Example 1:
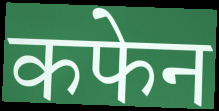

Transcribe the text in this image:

कफेन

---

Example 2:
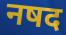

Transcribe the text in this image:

नषद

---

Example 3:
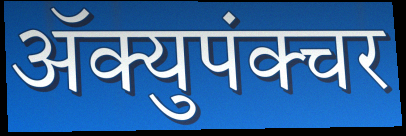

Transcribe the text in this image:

ॲक्युपंक्चर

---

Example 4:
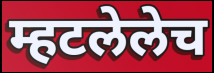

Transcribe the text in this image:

म्हटलेलेच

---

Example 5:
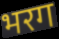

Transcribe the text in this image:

भरग